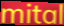
mital